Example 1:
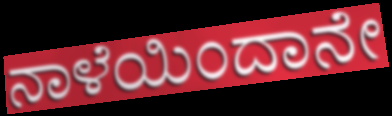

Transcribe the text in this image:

ನಾಳೆಯಿಂದಾನೇ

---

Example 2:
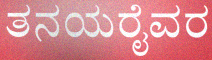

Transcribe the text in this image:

ತನಯರೈವರ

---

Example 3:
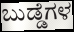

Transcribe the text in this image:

ಬುಡ್ಡೆಗಳ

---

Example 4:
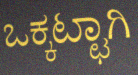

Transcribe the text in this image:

ಒಕ್ಕಟ್ಟಾಗಿ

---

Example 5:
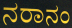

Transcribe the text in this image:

ನರಾನಂ